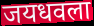
जयधवला